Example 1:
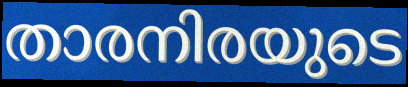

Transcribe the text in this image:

താരനിരയുടെ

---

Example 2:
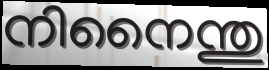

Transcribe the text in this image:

നിനൈന്തു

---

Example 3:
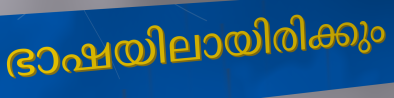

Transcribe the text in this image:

ഭാഷയിലായിരിക്കും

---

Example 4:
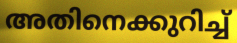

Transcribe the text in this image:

അതിനെക്കുറിച്ച്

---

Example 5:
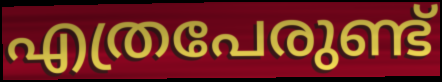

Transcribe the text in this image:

എത്രപേരുണ്ട്